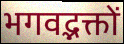
भगवद्भक्तों